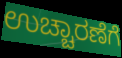
ಉಚ್ಚಾರಣೆಗೆ